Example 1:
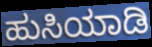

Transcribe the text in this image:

ಹುಸಿಯಾಡಿ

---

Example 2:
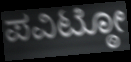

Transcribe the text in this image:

ಪವಿಟ್ಠೋ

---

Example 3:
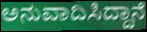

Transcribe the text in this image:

ಅನುವಾದಿಸಿದ್ದಾನೆ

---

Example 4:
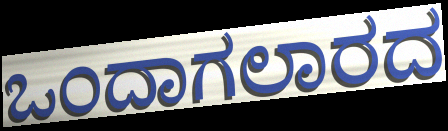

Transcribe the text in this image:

ಒಂದಾಗಲಾರದ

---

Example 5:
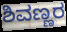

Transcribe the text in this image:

ಶಿವಣ್ಣರ